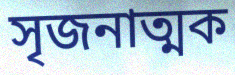
সৃজনাত্মক